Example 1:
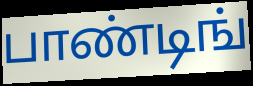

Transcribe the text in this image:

பாண்டிங்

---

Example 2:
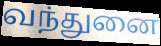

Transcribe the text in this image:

வந்துனை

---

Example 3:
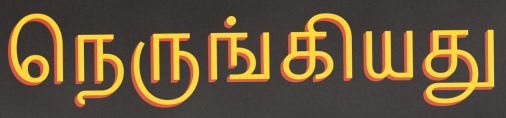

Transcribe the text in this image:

நெருங்கியது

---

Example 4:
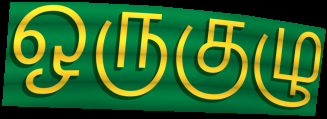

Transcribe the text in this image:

ஒருகுழு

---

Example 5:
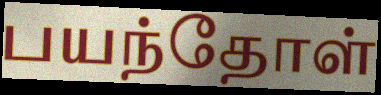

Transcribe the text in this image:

பயந்தோள்